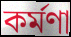
কর্মণা